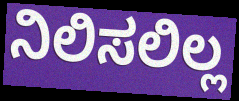
ನಿಲಿಸಲಿಲ್ಲ